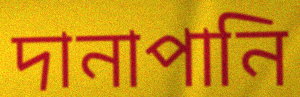
দানাপানি